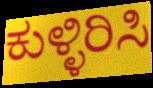
ಕುಳ್ಳಿರಿಸಿ